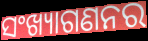
ସଂଖ୍ୟାଗଣନର